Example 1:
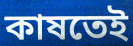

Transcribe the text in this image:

কাষতেই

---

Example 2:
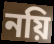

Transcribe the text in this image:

নয়ি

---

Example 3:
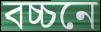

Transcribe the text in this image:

বচ্চনে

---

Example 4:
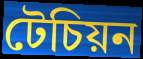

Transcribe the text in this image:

টেচিয়ন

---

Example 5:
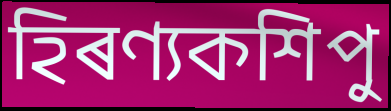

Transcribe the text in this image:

হিৰণ্যকশিপু